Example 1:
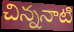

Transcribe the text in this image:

చిన్ననాటి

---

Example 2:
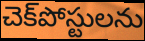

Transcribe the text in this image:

చెక్‌పోస్టులను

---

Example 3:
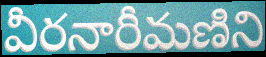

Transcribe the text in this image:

వీరనారీమణిని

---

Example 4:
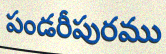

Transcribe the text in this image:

పండరీపురము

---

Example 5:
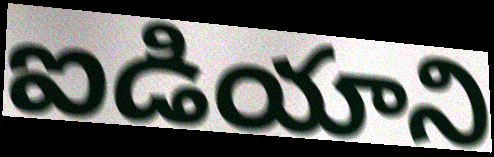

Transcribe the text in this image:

ఐడియాని